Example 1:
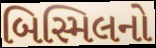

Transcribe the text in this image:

બિસ્મિલનો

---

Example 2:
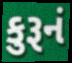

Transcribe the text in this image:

કુરૂનં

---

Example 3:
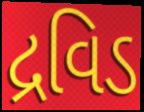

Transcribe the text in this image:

દ્રવિડ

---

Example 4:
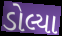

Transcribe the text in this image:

ડોલ્યા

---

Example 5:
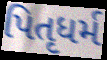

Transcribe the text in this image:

પિતૃધર્મ